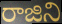
రాజిని